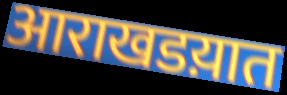
आराखडय़ात